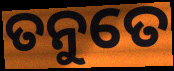
ତନୁତେ